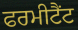
ਫਰਮੀਟੈਂਟ